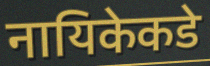
नायिकेकडे